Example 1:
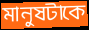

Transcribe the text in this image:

মানুষটাকে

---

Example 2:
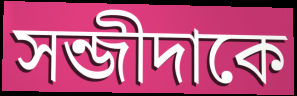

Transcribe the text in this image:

সন্জীদাকে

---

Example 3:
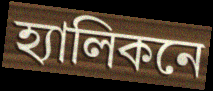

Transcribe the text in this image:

হ্যালিকনে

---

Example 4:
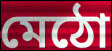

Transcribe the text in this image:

মেঠো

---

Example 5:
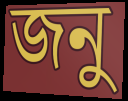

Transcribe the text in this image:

জনু